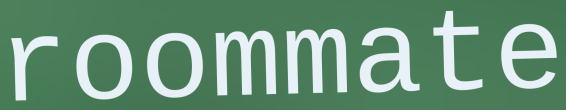
roommate